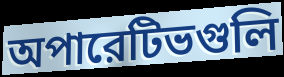
অপারেটিভগুলি